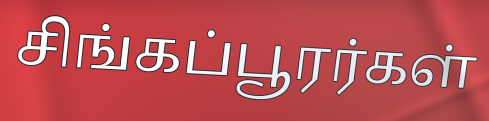
சிங்கப்பூரர்கள்